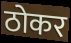
ठोकर